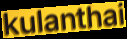
kulanthai